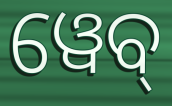
ୱେବ୍